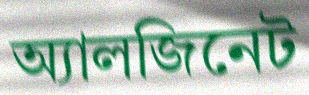
অ্যালজিনেট